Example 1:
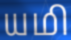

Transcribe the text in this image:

யமி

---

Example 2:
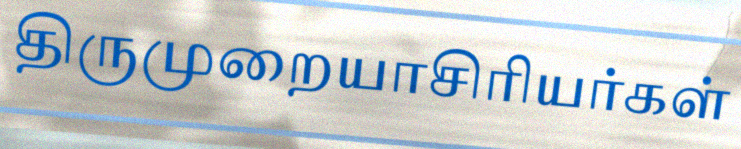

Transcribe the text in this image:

திருமுறையாசிரியர்கள்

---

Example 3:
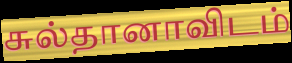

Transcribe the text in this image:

சுல்தானாவிடம்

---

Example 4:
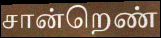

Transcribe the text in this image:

சான்றெண்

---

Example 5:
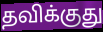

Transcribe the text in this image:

தவிக்குது